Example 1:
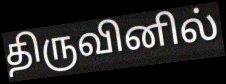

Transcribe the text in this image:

திருவினில்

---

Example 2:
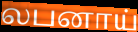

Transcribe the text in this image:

லபனாய்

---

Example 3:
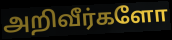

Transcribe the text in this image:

அறிவீர்களோ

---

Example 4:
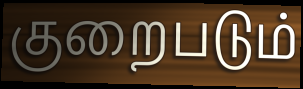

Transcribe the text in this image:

குறைபடும்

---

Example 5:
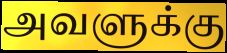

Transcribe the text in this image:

அவளுக்கு